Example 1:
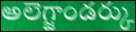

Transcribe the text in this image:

అలెగ్జాండర్కు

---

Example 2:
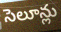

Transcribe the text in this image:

సెలూన్లు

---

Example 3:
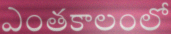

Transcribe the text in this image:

ఎంతకాలంలో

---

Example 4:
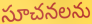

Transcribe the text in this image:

సూచనలను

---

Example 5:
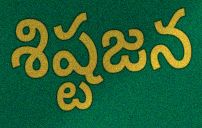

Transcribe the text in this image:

శిష్టజన